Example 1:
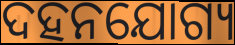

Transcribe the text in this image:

ଦହନଯୋଗ୍ୟ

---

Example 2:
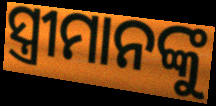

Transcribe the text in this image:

ସ୍ତ୍ରୀମାନଙ୍କୁ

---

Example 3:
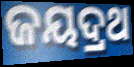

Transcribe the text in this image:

ଜୟଦ୍ରଥ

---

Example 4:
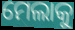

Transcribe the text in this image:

ମେଲାକୁ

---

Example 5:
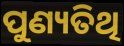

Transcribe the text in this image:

ପୁଣ୍ୟତିଥି